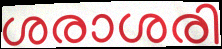
ശരാശരി